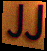
JJ